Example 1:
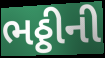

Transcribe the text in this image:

ભઠ્ઠીની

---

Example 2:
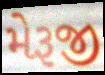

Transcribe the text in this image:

મેરૂજી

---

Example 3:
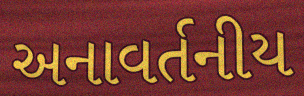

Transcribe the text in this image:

અનાવર્તનીય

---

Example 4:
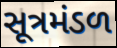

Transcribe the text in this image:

સૂત્રમંડળ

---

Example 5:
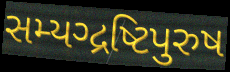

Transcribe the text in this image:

સમ્યગ્દ્રષ્ટિપુરુષ